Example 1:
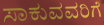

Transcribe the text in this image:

ಸಾಕುವವರಿಗೆ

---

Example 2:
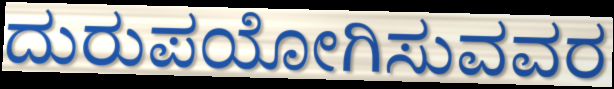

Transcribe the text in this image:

ದುರುಪಯೋಗಿಸುವವರ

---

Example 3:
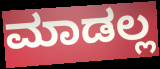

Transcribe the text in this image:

ಮಾಡಲ್ಲ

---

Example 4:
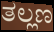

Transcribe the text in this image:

ತಲ್ಲಣ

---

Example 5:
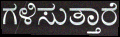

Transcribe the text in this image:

ಗಳಿಸುತ್ತಾರೆ